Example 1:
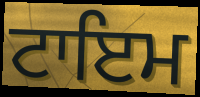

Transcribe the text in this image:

ਟਾਇਮ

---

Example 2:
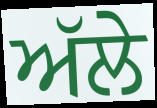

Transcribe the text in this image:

ਅੱਲੇ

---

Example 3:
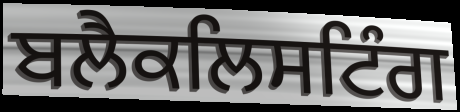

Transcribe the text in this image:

ਬਲੈਕਲਿਸਟਿੰਗ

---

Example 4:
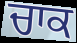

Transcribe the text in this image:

ਚਾਕ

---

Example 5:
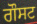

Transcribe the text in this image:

ਗੌਸਟ